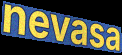
nevasa